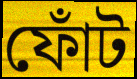
ফোঁট